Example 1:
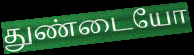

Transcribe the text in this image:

துண்டையோ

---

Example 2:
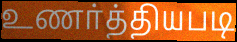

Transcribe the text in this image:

உணர்த்தியபடி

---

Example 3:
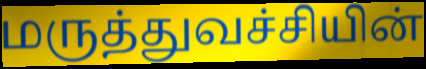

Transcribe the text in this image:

மருத்துவச்சியின்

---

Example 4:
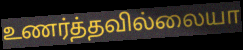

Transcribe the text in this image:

உணர்த்தவில்லையா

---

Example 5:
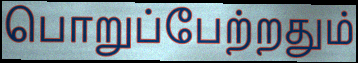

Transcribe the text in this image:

பொறுப்பேற்றதும்